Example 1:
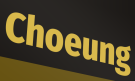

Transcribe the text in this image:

Choeung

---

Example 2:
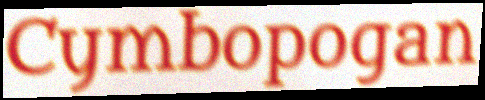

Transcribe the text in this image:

Cymbopogan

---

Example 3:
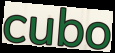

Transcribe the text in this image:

cubo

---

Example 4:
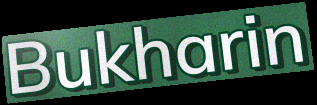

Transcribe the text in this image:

Bukharin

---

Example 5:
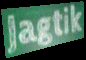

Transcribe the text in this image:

Jagtik